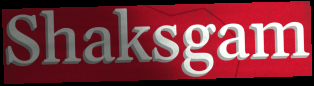
Shaksgam